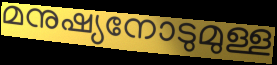
മനുഷ്യനോടുമുള്ള